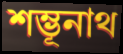
শম্ভূনাথ